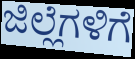
ಜಿಲ್ಲೆಗಳಿಗೆ